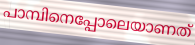
പാമ്പിനെപ്പോലെയാണത്